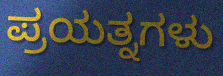
ಪ್ರಯತ್ನಗಳು